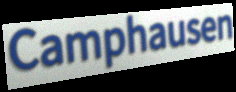
Camphausen